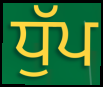
ਧੁੱਪ